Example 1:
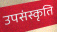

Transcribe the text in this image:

उपसंस्कृति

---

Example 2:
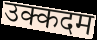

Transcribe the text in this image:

उक्कदम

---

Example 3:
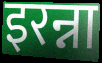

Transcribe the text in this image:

इरन्ना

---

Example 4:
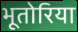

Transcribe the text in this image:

भूतोरिया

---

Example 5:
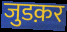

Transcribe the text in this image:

जुडक़र